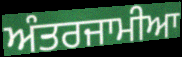
ਅੰਤਰਜਾਮੀਆ